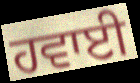
ਹਵਾਈ